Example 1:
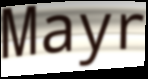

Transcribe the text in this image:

Mayr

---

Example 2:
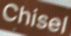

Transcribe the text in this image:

Chisel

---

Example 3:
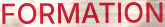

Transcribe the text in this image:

FORMATION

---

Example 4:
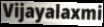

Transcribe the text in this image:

Vijayalaxmi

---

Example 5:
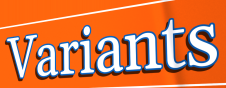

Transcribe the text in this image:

Variants